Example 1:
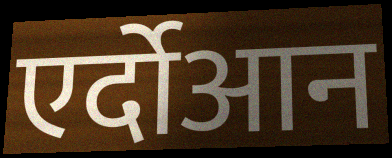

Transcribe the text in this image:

एर्दोआन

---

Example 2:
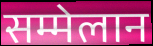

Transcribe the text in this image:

सम्मेलान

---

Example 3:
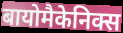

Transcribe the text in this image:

बायोमैकेनिक्स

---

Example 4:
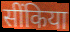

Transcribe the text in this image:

सींकिया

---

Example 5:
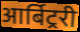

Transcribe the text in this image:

आर्बिट्ररी